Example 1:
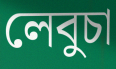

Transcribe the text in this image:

লেবুচা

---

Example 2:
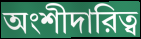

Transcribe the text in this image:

অংশীদারিত্ব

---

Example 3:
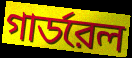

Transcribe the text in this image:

গার্ডরেল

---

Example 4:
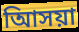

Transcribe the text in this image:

আিসয়া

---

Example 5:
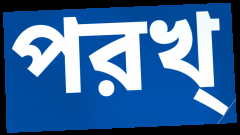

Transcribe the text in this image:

পরখ্